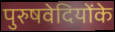
पुरुषवेदियोंके